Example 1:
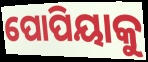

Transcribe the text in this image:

ପୋପିୟାକୁ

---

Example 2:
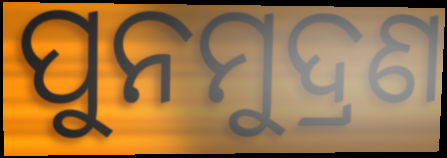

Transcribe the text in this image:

ପୁନମୁଦ୍ରଣ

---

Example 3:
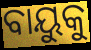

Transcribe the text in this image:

ବାୟୁକୁ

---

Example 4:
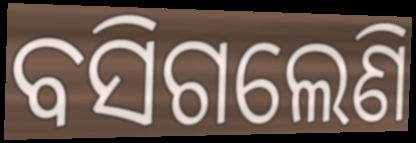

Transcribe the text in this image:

ବସିଗଲେଣି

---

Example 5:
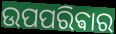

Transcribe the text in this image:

ଉପପରିଵାର